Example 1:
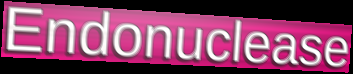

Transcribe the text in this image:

Endonuclease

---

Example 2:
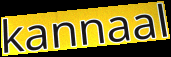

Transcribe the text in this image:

kannaal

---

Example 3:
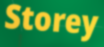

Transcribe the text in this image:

Storey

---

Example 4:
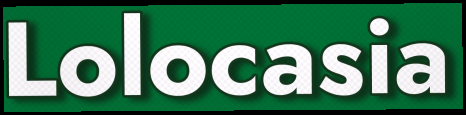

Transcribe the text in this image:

Lolocasia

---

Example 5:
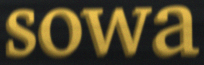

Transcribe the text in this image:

sowa